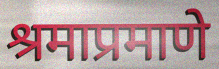
श्रमाप्रमाणे